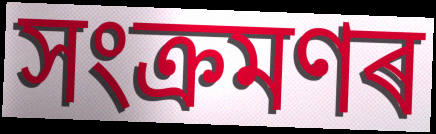
সংক্ৰমণৰ